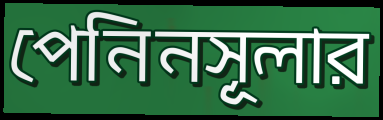
পেনিনসূলার